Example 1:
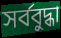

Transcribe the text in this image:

সৰ্ববুদ্ধা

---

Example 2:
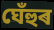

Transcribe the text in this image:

ঘেঁহুৰ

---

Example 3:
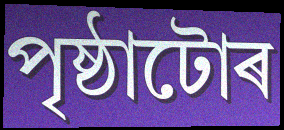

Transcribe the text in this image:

পৃষ্ঠাটোৰ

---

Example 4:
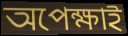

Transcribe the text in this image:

অপেক্ষাই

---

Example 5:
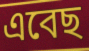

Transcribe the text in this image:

এবেছ